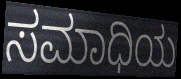
ಸಮಾಧಿಯ